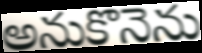
అనుకొనెను